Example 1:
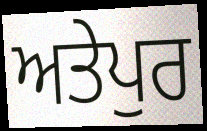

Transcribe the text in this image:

ਅਤੇਪੁਰ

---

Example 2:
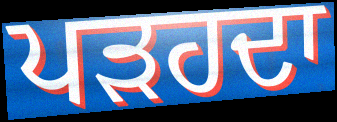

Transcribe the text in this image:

ਪੜਹਦਾ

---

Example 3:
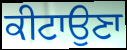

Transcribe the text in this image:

ਕੀਟਾਉਣਾ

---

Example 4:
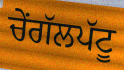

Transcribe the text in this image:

ਚੇਂਗੱਲਪੱਟੂ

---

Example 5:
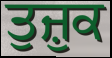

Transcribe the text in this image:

ਤੁਜ਼ੁਕ